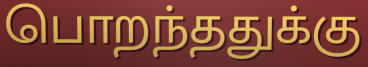
பொறந்ததுக்கு